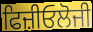
ਫਿਜ਼ੀਓਲੋਜੀ